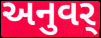
અનુવર્